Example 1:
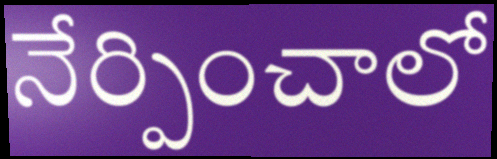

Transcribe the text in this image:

నేర్పించాలో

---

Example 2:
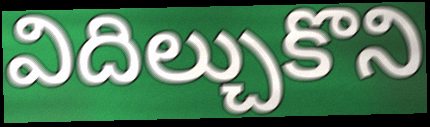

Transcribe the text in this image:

విదిల్చుకొని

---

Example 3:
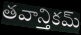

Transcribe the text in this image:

తవాన్తికమ్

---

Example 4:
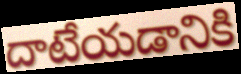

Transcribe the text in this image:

దాటేయడానికి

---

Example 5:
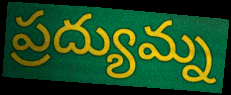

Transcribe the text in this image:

ప్రద్యుమ్న